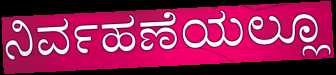
ನಿರ್ವಹಣೆಯಲ್ಲೂ